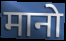
मानो